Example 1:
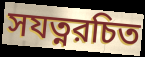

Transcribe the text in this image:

সযত্নরচিত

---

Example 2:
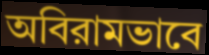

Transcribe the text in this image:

অবিরামভাবে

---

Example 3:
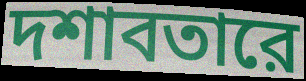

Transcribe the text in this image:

দশাবতারে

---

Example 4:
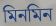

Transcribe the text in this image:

মিনমিন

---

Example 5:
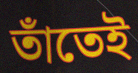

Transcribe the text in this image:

তাঁতেই